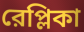
রেপ্লিকা